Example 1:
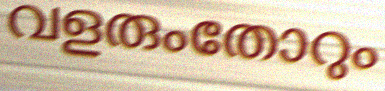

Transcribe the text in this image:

വളരുംതോറും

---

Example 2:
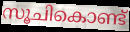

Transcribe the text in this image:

സൂചികൊണ്ട്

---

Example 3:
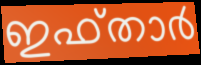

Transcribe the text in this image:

ഇഫ്താർ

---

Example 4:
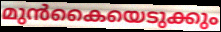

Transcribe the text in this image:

മുൻകൈയെടുക്കും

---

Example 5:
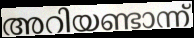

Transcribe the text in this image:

അറിയണ്ടാന്ന്